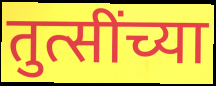
तुत्सींच्या